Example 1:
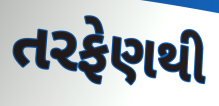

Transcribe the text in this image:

તરફેણથી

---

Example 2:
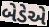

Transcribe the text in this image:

બેડેએ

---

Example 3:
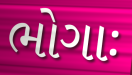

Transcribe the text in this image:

ભોગાઃ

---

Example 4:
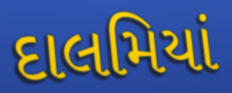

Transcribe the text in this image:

દાલમિયાં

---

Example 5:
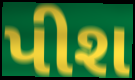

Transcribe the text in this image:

પીશ